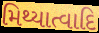
મિથ્યાત્વાદિ